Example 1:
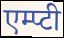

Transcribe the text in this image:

एम्प्टी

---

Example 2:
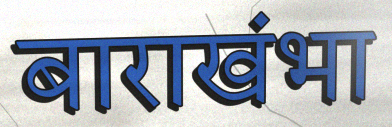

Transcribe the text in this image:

बाराखंभा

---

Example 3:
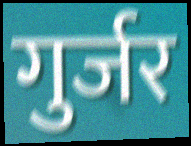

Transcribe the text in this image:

गुर्जर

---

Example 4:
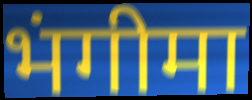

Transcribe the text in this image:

भंगीमा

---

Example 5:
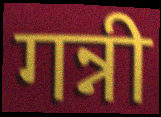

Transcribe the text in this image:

गन्नी